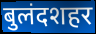
बुलंदशहर